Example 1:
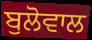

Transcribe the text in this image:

ਬੁਲੋਵਾਲ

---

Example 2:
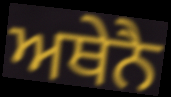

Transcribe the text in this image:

ਅਥੇਨੈ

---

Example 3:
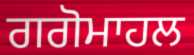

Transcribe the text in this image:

ਗਗੋਮਾਹਲ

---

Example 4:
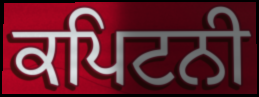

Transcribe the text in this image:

ਕਪਿਟਨੀ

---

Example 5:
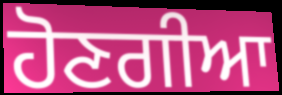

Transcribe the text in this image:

ਹੋਣਗੀਆ